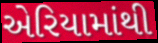
એરિયામાંથી